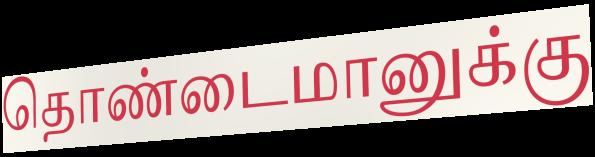
தொண்டைமானுக்கு